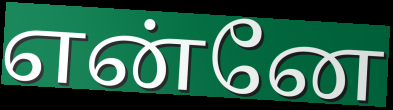
என்னே